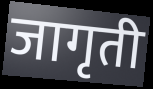
जागृती